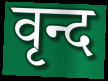
वृन्द